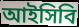
আইসিবি